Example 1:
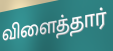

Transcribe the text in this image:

விளைத்தார்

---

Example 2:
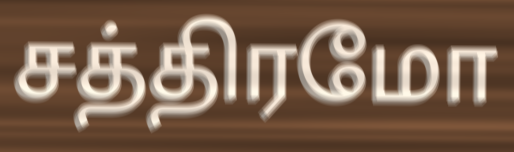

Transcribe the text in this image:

சத்திரமோ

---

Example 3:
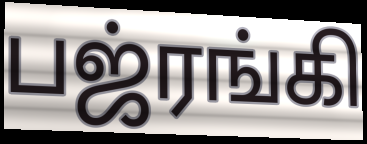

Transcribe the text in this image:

பஜ்ரங்கி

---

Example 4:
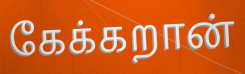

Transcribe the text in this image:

கேக்கறான்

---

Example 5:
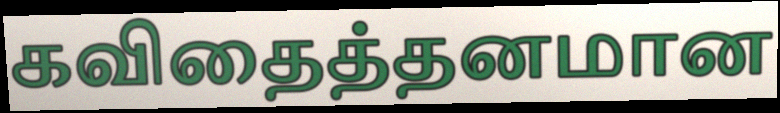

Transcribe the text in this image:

கவிதைத்தனமான